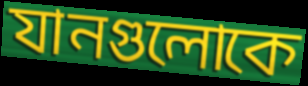
যানগুলোকে